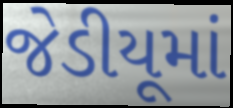
જેડીયૂમાં